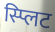
स्प्लिट